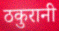
ठकुरानी